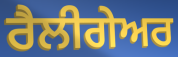
ਰੈਲੀਗੇਅਰ